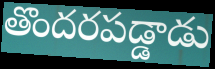
తొందరపడ్డాడు